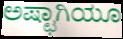
ಅಷ್ಟಾಗಿಯೂ